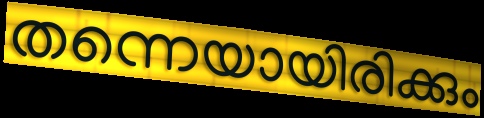
തന്നെയായിരിക്കും